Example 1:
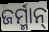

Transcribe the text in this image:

ଜର୍ମ୍ମାନ୍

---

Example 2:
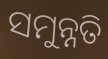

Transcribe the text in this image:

ସମୁନ୍ନତି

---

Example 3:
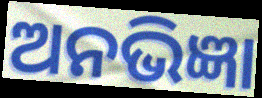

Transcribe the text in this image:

ଅନଭିଜ୍ଞା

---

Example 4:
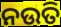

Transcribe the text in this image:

ନଉତି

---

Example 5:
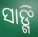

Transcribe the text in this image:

ସାଙ୍ଗି